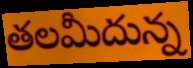
తలమీదున్న